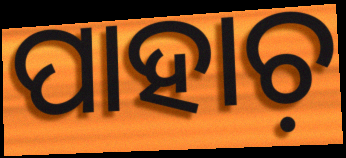
ପାହାଚ଼